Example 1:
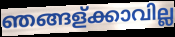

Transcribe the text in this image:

ഞങ്ങള്ക്കാവില്ല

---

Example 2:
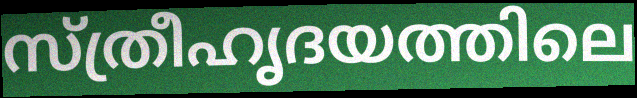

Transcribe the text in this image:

സ്ത്രീഹൃദയത്തിലെ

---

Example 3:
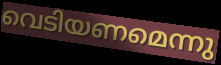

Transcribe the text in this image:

വെടിയണമെന്നു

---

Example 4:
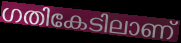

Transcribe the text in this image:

ഗതികേടിലാണ്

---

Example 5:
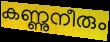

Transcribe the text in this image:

കണ്ണുനീരും